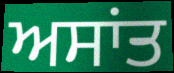
ਅਸਾਂਤ